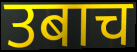
उबाच